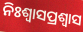
ନିଃଶ୍ୱାସପ୍ରଶ୍ୱାସ